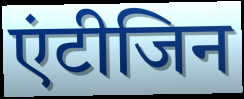
एंटीजिन